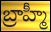
బ్రాహ్మీ